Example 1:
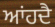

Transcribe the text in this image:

ਆਂਹਦੈ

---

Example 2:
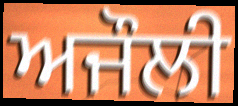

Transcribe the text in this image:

ਅਜੌਲੀ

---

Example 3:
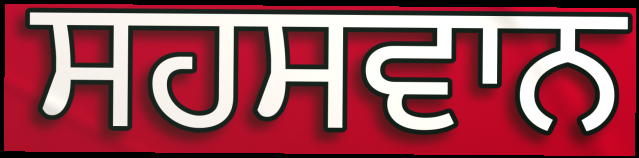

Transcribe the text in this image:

ਸਹਸਵਾਨ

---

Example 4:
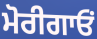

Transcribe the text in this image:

ਮੋਰੀਗਾਓਂ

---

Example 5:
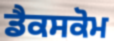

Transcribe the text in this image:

ਡੈਕਸਕੋਮ